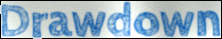
Drawdown